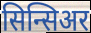
सिन्सिअर